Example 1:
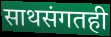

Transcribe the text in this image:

साथसंगतही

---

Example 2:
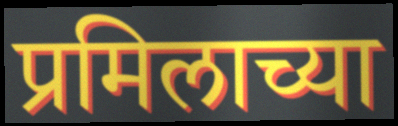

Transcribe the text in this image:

प्रमिलाच्या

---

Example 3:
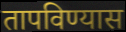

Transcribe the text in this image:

तापविण्यास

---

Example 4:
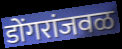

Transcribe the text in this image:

डोंगरांजवळ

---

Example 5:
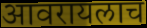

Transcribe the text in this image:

आवरायलाच